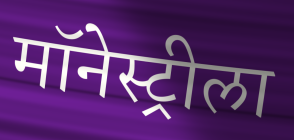
मॉनेस्ट्रीला